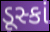
ડૂસ્કાં